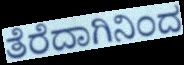
ತೆರೆದಾಗಿನಿಂದ